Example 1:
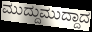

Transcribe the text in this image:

ಮುದ್ದುಮುದ್ದಾದ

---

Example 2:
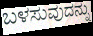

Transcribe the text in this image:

ಬಳಸುವುದನ್ನು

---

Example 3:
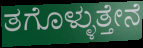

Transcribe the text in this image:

ತಗೊಳ್ಳುತ್ತೇನೆ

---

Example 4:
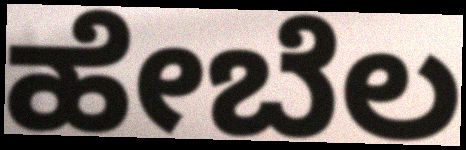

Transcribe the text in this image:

ಹೇಬೆಲ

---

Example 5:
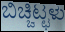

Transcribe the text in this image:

ಬಿಚ್ಚಿಟ್ಟಳು